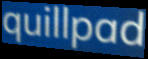
quillpad